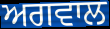
ਅਗਵਾਲ